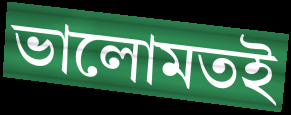
ভালোমতই